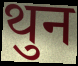
थुन